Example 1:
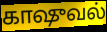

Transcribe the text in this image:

காஷுவல்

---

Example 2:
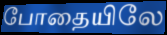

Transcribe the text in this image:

போதையிலே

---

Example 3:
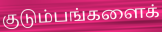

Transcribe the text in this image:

குடும்பங்களைக்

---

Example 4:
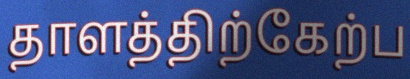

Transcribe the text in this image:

தாளத்திற்கேற்ப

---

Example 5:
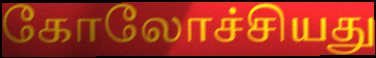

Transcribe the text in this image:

கோலோச்சியது